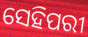
ସେହିପରୀ